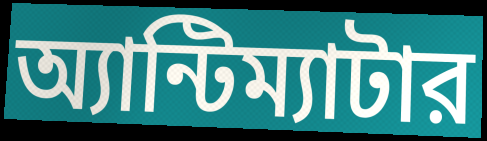
অ্যান্টিম্যাটার